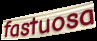
fastuosa